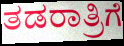
ತಡರಾತ್ರಿಗೆ